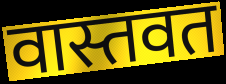
वास्‍तवत